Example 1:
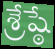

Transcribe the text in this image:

శ్రేష్ఠే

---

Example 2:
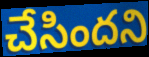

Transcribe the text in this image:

చేసిందని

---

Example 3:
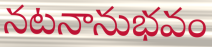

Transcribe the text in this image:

నటనానుభవం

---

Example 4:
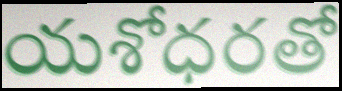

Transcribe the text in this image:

యశోధరతో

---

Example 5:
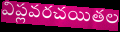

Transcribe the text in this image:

విప్లవరచయితల